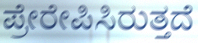
ಪ್ರೇರೇಪಿಸಿರುತ್ತದೆ